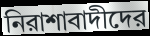
নিরাশাবাদীদের